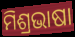
ମିଶ୍ରଭାଷା